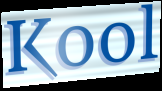
Kool